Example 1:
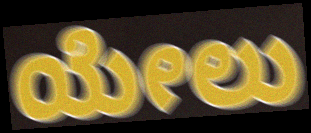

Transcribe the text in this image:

ಯೇಲು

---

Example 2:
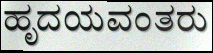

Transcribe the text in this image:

ಹೃದಯವಂತರು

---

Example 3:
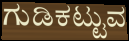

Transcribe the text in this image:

ಗುಡಿಕಟ್ಟುವ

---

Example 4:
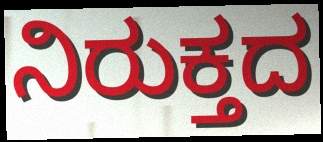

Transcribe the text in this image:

ನಿರುಕ್ತದ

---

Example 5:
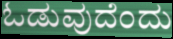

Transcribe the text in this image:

ಓಡುವುದೆಂದು